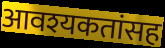
आवश्यकतांसह